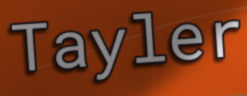
Tayler